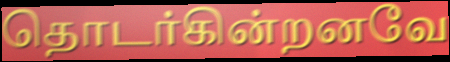
தொடர்கின்றனவே